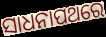
ସାଧନାପଥରେ